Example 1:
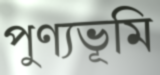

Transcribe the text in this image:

পুণ্যভূমি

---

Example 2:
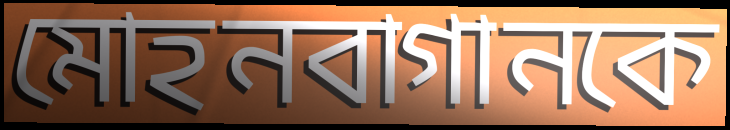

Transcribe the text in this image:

মোহনবাগানকে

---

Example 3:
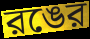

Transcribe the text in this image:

রঙের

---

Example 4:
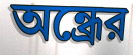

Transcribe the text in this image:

অন্ধ্রের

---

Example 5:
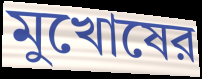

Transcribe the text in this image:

মুখোষের